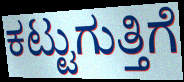
ಕಟ್ಟುಗುತ್ತಿಗೆ